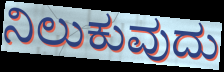
ನಿಲುಕುವುದು